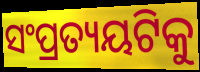
ସଂପ୍ରତ୍ୟୟଟିକୁ